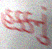
હક્કનું